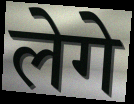
लेगे